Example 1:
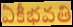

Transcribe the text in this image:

ఏకీభవతి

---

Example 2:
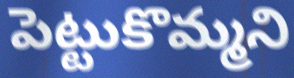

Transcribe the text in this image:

పెట్టుకొమ్మని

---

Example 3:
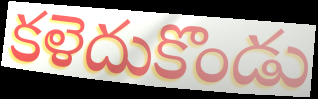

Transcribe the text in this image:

కళెదుకొండు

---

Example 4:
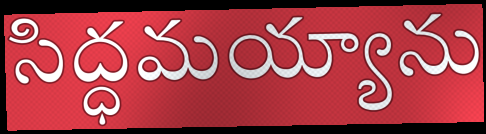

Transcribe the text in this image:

సిద్ధమయ్యాను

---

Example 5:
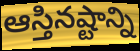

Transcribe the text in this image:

ఆస్తినష్టాన్ని